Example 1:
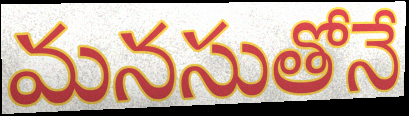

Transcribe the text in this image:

మనసుతోనే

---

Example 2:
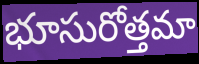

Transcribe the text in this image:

భూసురోత్తమా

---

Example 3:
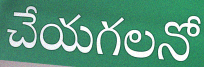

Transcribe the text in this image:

చేయగలనో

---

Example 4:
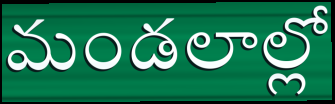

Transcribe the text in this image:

మండలాల్లో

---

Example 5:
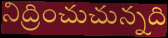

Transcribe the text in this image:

నిద్రించుచున్నది